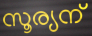
സൂര്യന്